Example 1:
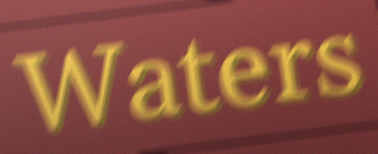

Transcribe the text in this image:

Waters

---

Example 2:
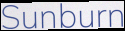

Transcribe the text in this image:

Sunburn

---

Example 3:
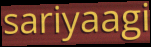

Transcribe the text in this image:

sariyaagi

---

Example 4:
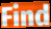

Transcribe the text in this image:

Find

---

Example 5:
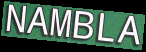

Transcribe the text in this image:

NAMBLA